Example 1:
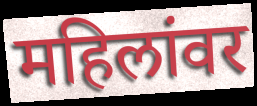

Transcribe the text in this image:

महिलांवर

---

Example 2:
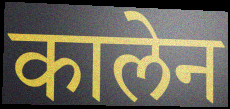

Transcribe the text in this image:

कालेन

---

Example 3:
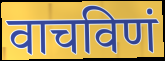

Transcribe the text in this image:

वाचविणं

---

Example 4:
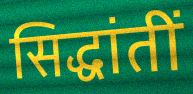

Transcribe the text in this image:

सिद्धांतीं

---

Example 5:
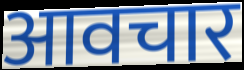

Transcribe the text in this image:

आवचार